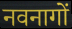
नवनागों